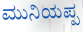
ಮುನಿಯಪ್ಪ